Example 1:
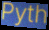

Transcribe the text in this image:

Pyth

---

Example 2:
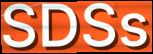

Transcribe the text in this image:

SDSs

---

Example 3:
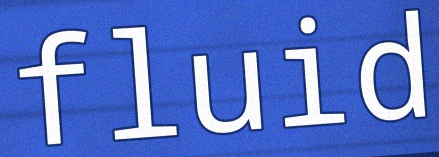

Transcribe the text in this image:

fluid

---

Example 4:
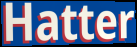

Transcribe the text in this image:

Hatter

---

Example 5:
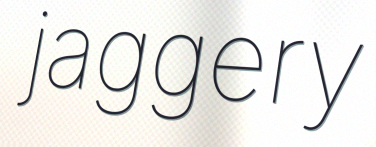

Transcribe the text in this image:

jaggery